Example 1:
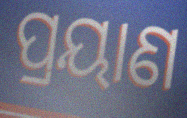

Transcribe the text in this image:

ପ୍ରୟାଣ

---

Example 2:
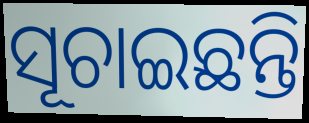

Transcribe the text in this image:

ସୂଚାଇଛନ୍ତି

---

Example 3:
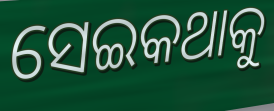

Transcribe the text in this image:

ସେଇକଥାକୁ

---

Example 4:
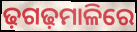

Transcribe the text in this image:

ଢ଼ଗଢ଼ମାଳିରେ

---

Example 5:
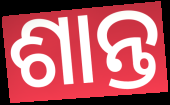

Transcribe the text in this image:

ଶାନ୍ତ